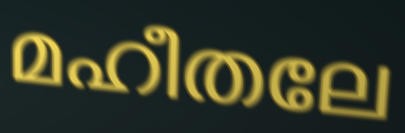
മഹീതലേ